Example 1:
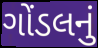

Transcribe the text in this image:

ગોંડલનું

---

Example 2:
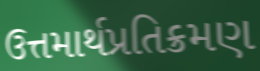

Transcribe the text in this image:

ઉત્તમાર્થપ્રતિક્રમણ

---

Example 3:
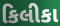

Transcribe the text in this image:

કિલીકા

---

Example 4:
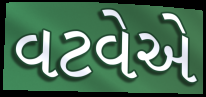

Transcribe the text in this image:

વટવેએ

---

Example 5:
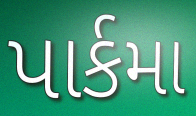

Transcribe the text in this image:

પાર્કમા